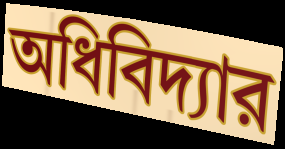
অধিবিদ্যার